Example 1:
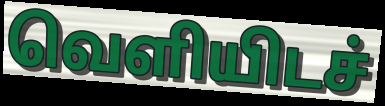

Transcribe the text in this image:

வெளியிடச்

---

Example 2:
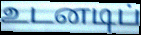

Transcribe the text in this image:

உடனடிப்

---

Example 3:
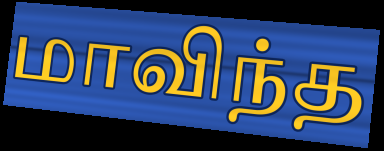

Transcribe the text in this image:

மாவிந்த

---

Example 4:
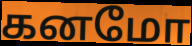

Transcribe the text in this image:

கனமோ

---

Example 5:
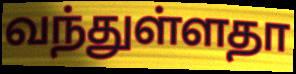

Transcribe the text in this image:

வந்துள்ளதா